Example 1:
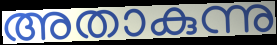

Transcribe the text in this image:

അതാകുന്നു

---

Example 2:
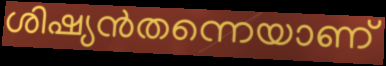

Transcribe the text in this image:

ശിഷ്യൻതന്നെയാണ്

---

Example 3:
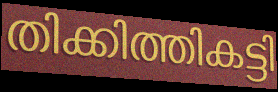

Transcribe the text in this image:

തിക്കിത്തികട്ടി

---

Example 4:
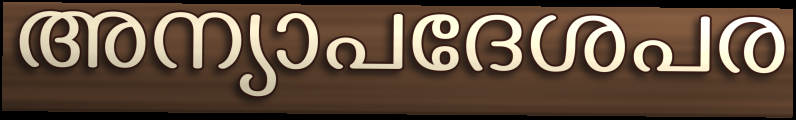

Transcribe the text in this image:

അന്യാപദേശപര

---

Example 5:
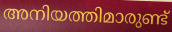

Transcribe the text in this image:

അനിയത്തിമാരുണ്ട്